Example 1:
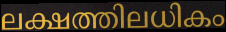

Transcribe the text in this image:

ലക്ഷത്തിലധികം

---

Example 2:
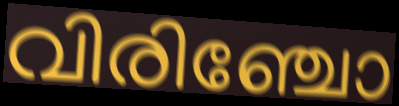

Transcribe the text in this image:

വിരിഞ്ചോ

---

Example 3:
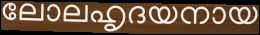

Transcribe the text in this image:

ലോലഹൃദയനായ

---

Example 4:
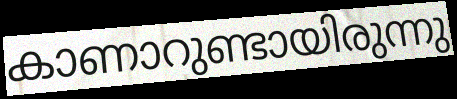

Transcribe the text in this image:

കാണാറുണ്ടായിരുന്നു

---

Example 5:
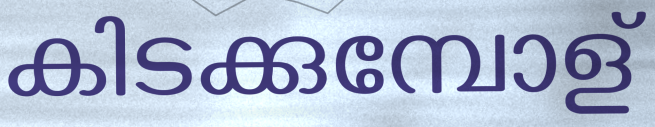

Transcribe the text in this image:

കിടക്കുമ്പോള്